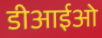
डीआईओ